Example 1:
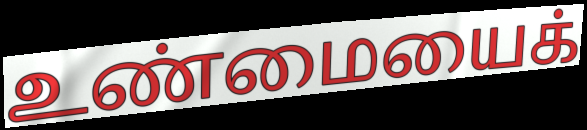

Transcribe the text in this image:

உண்மையைக்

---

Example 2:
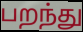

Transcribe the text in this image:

பறந்து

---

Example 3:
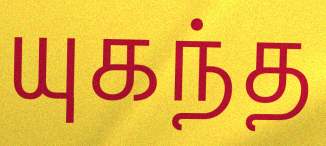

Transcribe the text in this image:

யுகந்த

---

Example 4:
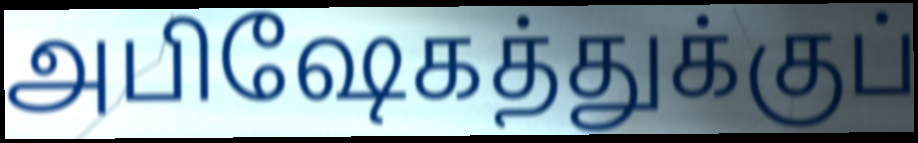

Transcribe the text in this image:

அபிஷேகத்துக்குப்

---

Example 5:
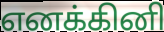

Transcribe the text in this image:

எனக்கினி